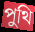
পুথি